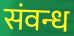
संवन्ध